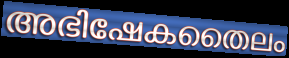
അഭിഷേകതൈലം